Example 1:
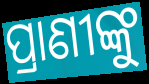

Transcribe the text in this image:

ପ୍ରାଣୀଙ୍କୁ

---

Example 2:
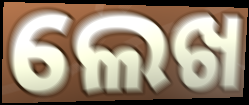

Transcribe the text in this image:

ଲେଖ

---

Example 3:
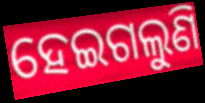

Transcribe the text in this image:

ହେଇଗଲୁଣି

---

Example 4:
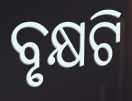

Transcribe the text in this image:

ବୃକ୍ଷଟି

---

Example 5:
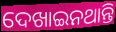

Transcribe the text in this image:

ଦେଖାଇନଥାନ୍ତି